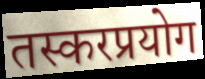
तस्करप्रयोग